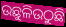
ଉଛୁଳିଉଠୁଛି